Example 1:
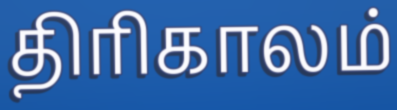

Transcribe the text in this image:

திரிகாலம்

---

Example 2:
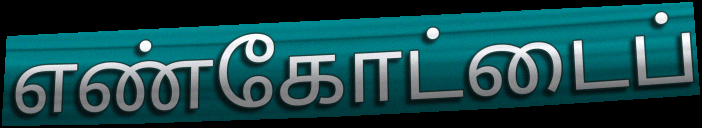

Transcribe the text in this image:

எண்கோட்டைப்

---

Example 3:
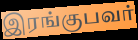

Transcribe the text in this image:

இரங்குபவர்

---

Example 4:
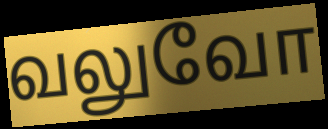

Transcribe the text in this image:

வலுவோ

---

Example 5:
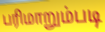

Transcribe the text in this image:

பரிமாறும்படி